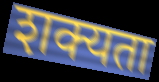
शक्यता